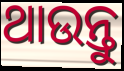
ଥାଉନ୍ତୁ